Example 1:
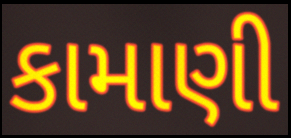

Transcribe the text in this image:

કામાણી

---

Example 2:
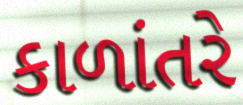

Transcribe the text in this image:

કાળાંતરે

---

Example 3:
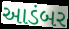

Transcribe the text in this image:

આડંબર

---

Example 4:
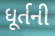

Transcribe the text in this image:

ધૂર્તની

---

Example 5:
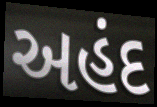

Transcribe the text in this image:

અહંદ